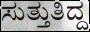
ಸುತ್ತುತಿದ್ದ